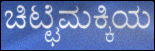
ಚಿಟ್ಟೆಮಕ್ಕಿಯ